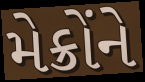
મેક્રોંને